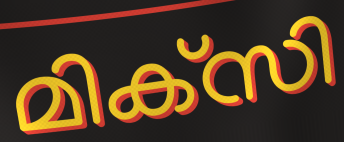
മിക്‌സി